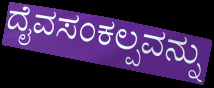
ದೈವಸಂಕಲ್ಪವನ್ನು